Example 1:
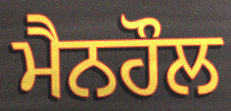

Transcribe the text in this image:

ਮੈਨਹੌਲ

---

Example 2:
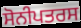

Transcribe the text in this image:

ਸੋਨੀਪਤਰਸ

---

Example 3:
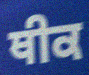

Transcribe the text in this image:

ਥੀਕ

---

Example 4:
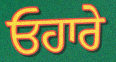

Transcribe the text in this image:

ਓਹਾਰੇ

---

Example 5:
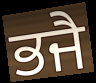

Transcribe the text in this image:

ਭਜੈ